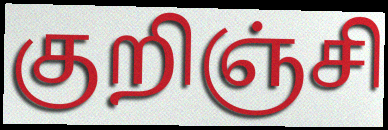
குறிஞ்சி